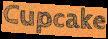
Cupcake